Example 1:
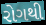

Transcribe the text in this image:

રોગથી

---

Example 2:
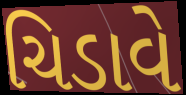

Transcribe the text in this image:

ચિડાવે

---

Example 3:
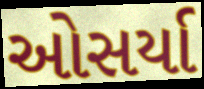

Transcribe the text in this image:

ઓસર્યા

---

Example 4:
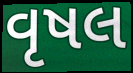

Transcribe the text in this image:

વૃષલ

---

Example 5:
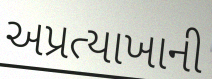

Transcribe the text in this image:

અપ્રત્યાખાની